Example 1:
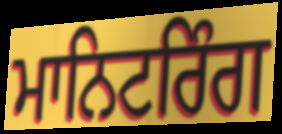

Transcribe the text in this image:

ਮਾਨਿਟਰਿੰਗ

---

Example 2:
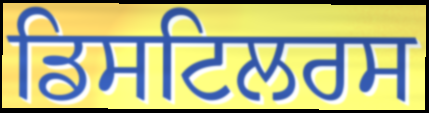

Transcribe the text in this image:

ਡਿਸਟਿਲਰਸ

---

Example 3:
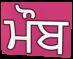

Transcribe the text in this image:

ਮੌਬ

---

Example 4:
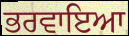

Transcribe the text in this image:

ਭਰਵਾਇਆ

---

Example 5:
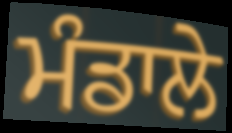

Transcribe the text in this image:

ਮੰਡਾਲੇ